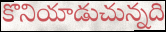
కొనియాడుచున్నది